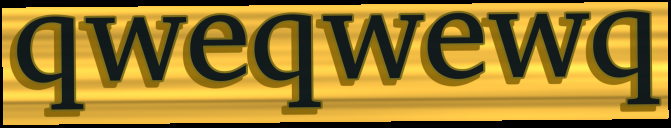
qweqwewq